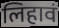
लिहावं